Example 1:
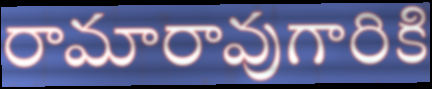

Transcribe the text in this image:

రామారావుగారికి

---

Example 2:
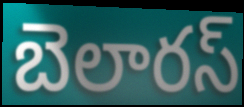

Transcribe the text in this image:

బెలారస్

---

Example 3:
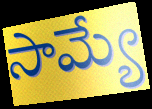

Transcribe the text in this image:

సామ్యే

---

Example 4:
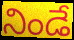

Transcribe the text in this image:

నిండే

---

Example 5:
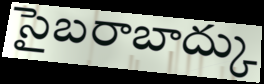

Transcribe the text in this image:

సైబరాబాద్కు